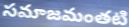
సమాజమంతటి